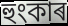
হুংকাৰ